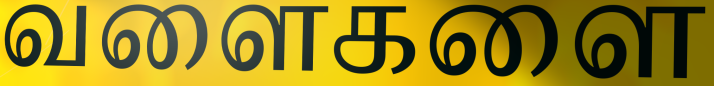
வளைகளை